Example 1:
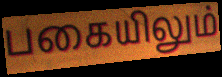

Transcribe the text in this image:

பகையிலும்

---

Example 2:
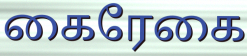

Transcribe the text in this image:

கைரேகை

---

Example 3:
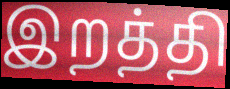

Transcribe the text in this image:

இறத்தி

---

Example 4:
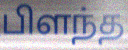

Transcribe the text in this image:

பிளந்த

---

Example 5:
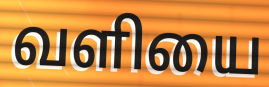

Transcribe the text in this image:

வளியை